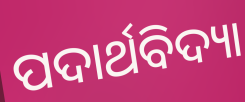
ପଦାର୍ଥବିଦ୍ୟା